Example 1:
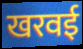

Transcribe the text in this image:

खरवई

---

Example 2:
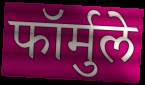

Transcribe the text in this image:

फॉर्मुले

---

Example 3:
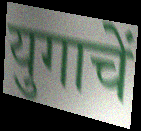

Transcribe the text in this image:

युगाचें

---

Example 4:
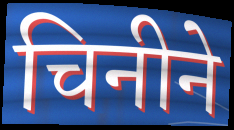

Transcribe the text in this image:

चिनीने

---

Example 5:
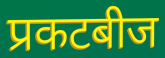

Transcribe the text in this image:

प्रकटबीज